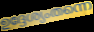
ഉദ്ദേശ്യംതന്നെ